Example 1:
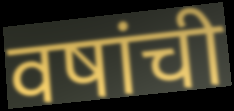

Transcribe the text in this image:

वषांची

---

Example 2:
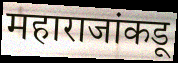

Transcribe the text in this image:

महाराजांकडू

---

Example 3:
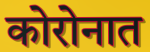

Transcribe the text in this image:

कोरोनात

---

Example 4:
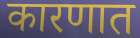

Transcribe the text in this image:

कारणात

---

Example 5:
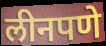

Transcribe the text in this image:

लीनपणे